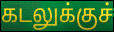
கடலுக்குச்